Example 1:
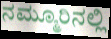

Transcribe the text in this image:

ನಮ್ಮೂರಿನಲ್ಲಿ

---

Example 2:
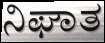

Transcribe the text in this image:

ನಿಘಾತ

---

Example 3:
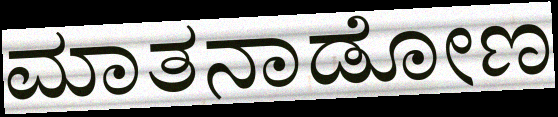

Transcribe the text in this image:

ಮಾತನಾಡೋಣ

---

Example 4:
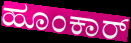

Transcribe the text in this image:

ಹೂಂಕಾರ್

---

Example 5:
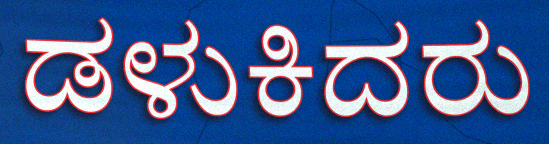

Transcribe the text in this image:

ಡಳುಕಿದರು